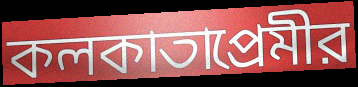
কলকাতাপ্রেমীর